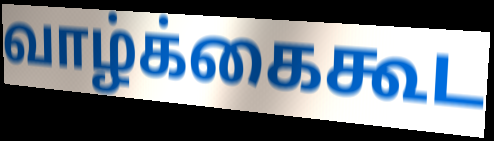
வாழ்க்கைகூட